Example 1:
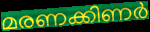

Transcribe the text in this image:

മരണക്കിണർ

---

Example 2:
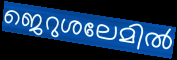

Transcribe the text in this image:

ജെറുശലേമിൽ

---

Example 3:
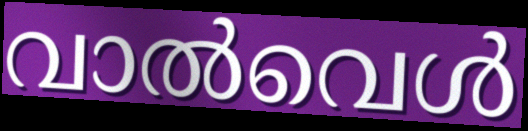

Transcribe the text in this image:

വാൽവെൾ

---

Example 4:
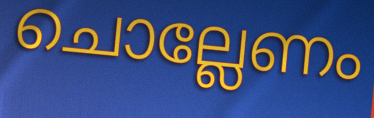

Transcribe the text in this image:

ചൊല്ലേണം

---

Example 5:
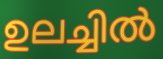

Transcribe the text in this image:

ഉലച്ചിൽ